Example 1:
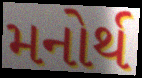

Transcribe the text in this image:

મનોર્થ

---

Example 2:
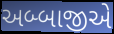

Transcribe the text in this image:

અબ્બાજીએ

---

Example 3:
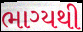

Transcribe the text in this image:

ભાગ્યથી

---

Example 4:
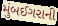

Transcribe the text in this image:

મુંબઈગરાની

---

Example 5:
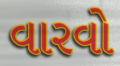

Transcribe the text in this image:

વારવો